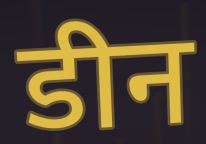
डीन